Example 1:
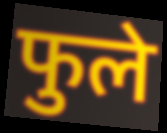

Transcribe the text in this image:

फुले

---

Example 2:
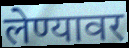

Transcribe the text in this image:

लेण्यावर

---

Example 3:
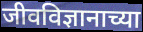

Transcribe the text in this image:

जीवविज्ञानाच्या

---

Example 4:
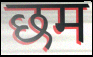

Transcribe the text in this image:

छम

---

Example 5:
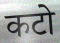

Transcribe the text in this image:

कटो